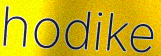
hodike